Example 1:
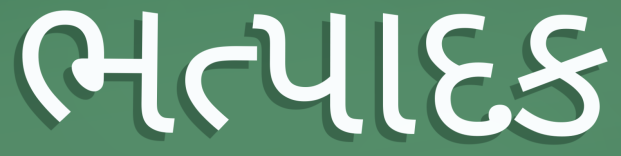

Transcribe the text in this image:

ભત્પાદક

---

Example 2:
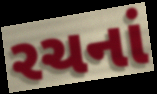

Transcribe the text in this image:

રચનાં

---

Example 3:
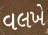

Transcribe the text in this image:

વલખે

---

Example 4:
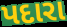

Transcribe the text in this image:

પદારા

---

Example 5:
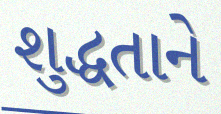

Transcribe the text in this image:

શુદ્ધતાને